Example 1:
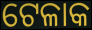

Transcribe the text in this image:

ଟେଳାକ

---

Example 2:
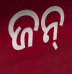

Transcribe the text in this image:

ଜନ୍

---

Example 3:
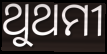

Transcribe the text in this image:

ଥୁଥମୀ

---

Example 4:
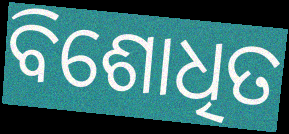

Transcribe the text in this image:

ବିଶୋଧିତ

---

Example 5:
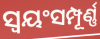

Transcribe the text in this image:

ସ୍ୱୟଂସମ୍ପୂର୍ଣ୍ଣ